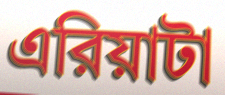
এরিয়াটা